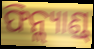
ଫିନ୍ଲ୍ୟାଣ୍ଡ୍